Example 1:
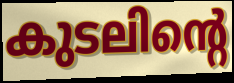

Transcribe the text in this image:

കുടലിന്റെ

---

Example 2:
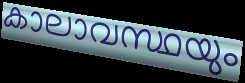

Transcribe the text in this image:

കാലാവസ്ഥയും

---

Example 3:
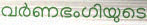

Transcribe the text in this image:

വർണഭംഗിയുടെ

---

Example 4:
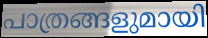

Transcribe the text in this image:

പാത്രങ്ങളുമായി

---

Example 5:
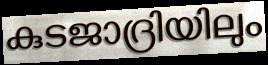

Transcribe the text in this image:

കുടജാദ്രിയിലും